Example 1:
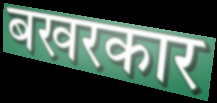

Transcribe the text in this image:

बखरकार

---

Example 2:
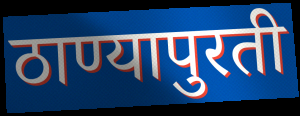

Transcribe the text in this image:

ठाण्यापुरती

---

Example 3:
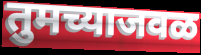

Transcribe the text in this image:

तुमच्याजवळ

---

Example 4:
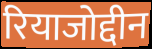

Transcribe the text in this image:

रियाजोद्दीन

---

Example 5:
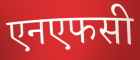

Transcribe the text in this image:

एनएफसी